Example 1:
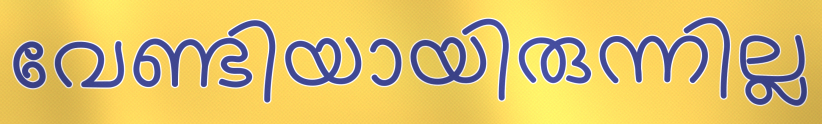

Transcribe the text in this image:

വേണ്ടിയായിരുന്നില്ല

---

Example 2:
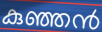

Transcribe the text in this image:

കുഞ്ഞൻ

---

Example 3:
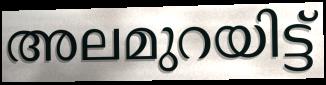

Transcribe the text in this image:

അലമുറയിട്ട്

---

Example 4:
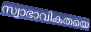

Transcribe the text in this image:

സ്വാഭാവികതയെ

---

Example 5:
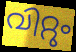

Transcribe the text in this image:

വിറ്റും